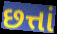
છત્તાં